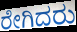
ರೇಗಿದರು